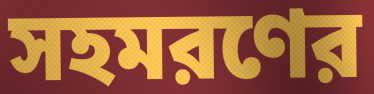
সহমরণের